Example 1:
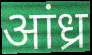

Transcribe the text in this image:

आंध्र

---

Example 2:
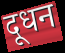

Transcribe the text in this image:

दूधन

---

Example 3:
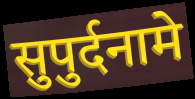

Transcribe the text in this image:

सुपुर्दनामे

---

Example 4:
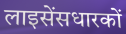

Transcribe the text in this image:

लाइसेंसधारकों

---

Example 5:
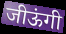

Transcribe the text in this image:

जीऊंगी